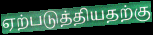
ஏற்படுத்தியதற்கு